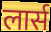
लार्स